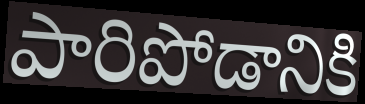
పారిపోడానికి